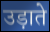
उड़ाते